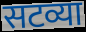
सटव्या